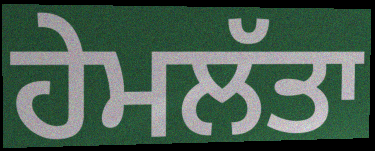
ਹੇਮਲੱਤਾ